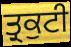
ਤ੍ਰਕੁਟੀ